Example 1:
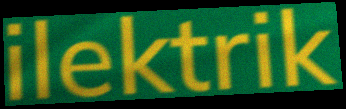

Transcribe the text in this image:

ilektrik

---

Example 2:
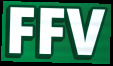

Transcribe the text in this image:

FFV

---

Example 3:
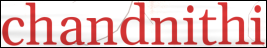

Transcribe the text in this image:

chandnithi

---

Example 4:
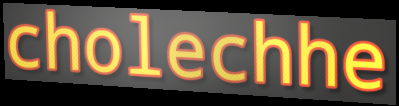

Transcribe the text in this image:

cholechhe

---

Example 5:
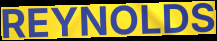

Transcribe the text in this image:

REYNOLDS